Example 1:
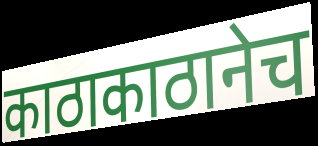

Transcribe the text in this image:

काठाकाठानेच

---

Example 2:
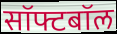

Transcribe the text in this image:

सॉफ्टबॉल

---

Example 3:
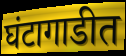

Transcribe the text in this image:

घंटागाडीत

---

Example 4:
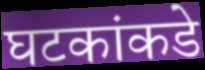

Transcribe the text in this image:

घटकांकडे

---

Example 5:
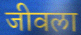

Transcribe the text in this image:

जीवला